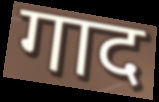
गाद